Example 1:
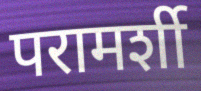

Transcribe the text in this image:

परामर्शी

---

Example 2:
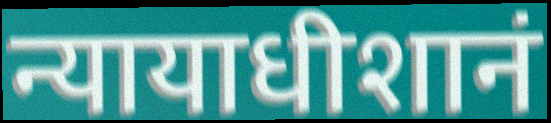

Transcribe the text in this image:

न्यायाधीशानं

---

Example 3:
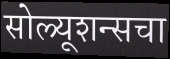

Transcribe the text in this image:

सोल्यूशन्सचा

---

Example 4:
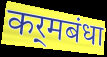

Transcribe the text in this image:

कर्मबंधा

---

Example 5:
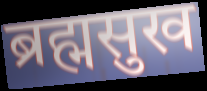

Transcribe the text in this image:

ब्रह्मसुख